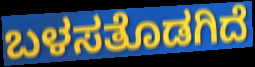
ಬಳಸತೊಡಗಿದೆ